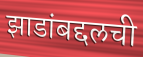
झाडांबद्दलची